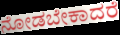
ನೋಡಬೇಕಾದರೆ